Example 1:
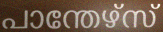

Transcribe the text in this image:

പാന്തേഴ്സ്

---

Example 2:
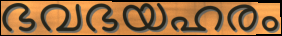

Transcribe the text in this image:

ഭവഭയഹരം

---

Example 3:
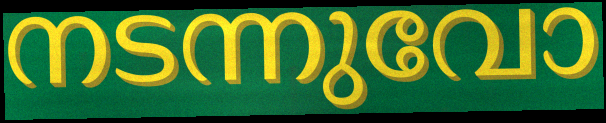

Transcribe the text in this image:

നടന്നുവോ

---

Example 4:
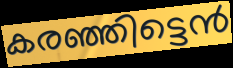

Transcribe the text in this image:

കരഞ്ഞിട്ടെൻ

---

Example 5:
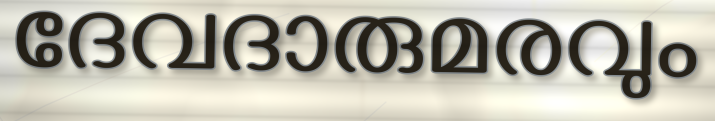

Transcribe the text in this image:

ദേവദാരുമരവും